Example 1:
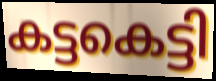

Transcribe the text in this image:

കട്ടകെട്ടി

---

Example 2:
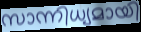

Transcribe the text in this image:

സാന്നിധ്യമായി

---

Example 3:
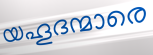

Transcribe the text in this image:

യഹൂദന്മാരെ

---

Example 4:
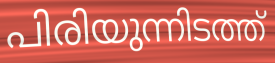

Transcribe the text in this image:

പിരിയുന്നിടത്ത്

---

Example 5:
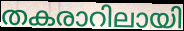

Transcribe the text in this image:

തകരാറിലായി